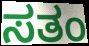
ಸತಂ